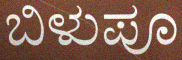
ಬಿಳುಪೂ